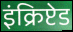
इंक्रिप्टेड